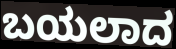
ಬಯಲಾದ